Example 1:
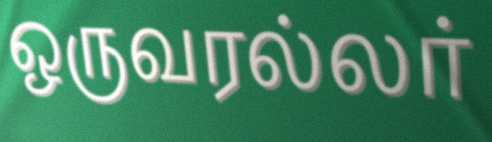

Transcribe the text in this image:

ஒருவரல்லர்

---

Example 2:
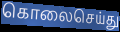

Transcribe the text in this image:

கொலைசெய்து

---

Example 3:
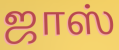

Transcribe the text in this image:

ஜாஸ்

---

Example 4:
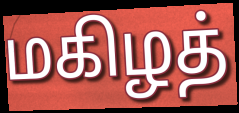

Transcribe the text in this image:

மகிழத்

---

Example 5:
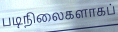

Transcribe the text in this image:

படிநிலைகளாகப்